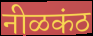
नीळकंठ